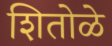
शितोळे